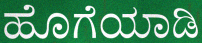
ಹೊಗೆಯಾಡಿ